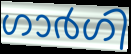
ഗാർഗി